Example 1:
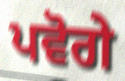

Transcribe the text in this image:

ਪਵੋਗੇ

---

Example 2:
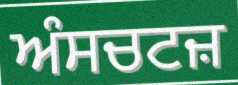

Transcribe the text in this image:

ਅੰਸਚਟਜ਼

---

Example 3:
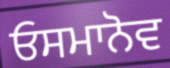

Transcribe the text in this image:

ਓਸਮਾਨੋਵ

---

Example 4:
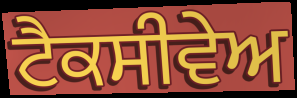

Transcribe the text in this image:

ਟੈਕਸੀਵੇਅ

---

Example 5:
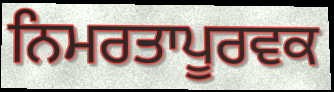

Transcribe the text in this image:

ਨਿਮਰਤਾਪੂਰਵਕ